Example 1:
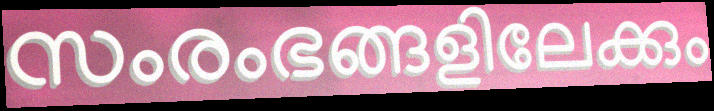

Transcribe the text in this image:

സംരംഭങ്ങളിലേക്കും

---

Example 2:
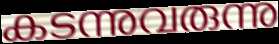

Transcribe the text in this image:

കടന്നുവരുന്നു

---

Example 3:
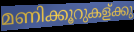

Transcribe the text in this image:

മണിക്കൂറുകള്ക്കു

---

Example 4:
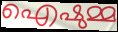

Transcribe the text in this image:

ഐഷുമ്മ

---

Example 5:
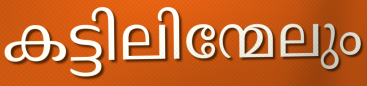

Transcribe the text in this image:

കട്ടിലിന്മേലും